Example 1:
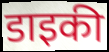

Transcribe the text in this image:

डाइकी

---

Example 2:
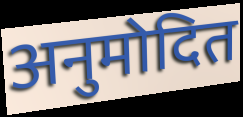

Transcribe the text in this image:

अनुमोदित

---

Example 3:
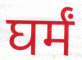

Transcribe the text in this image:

घर्मं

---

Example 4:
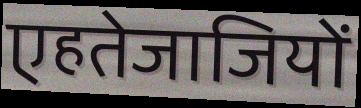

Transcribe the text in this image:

एहतेजाजियों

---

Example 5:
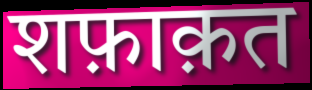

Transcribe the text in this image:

शफ़ाक़त